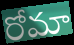
రోమా